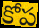
కోప